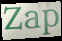
Zap